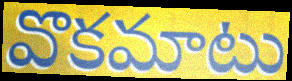
వొకమాటు